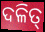
ଦଳିତ୍